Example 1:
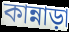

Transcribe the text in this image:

কান্নাড়া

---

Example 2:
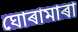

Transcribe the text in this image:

ঘোৰামাৰা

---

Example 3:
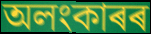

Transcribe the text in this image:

অলংকাৰৰ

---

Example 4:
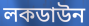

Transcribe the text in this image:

লকডাউন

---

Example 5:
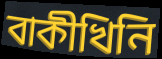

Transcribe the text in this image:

বাকীখিনি